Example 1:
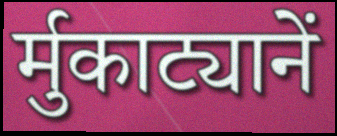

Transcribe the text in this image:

र्मुकाट्यानें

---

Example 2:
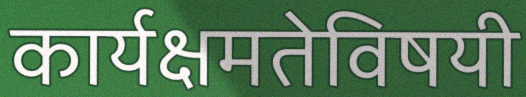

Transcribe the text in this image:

कार्यक्षमतेविषयी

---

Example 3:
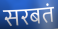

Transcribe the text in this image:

सरबतं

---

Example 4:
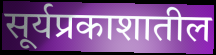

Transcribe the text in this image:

सूर्यप्रकाशातील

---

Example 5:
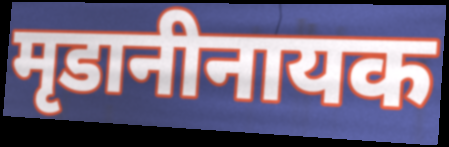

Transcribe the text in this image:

मृडानीनायक